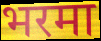
भरमा